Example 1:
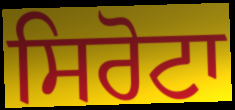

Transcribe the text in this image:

ਸਿਰੋਟਾ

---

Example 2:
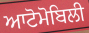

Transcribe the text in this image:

ਆਟੋਮੋਬਿਲੀ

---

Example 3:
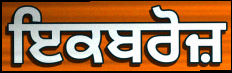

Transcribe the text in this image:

ਇਕਬਰੋਜ਼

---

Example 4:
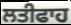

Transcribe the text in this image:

ਲਤੀਫਾਹ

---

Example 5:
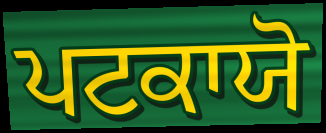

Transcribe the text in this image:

ਪਟਕਾਯੋ